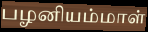
பழனியம்மாள்